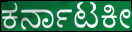
ಕರ್ನಾಟಕೀ